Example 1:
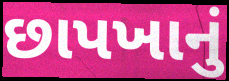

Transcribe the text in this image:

છાપખાનું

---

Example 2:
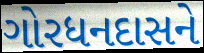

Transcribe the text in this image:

ગોરધનદાસને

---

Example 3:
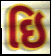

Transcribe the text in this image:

ઇિ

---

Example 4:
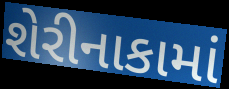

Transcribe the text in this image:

શેરીનાકામાં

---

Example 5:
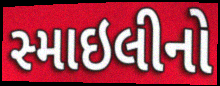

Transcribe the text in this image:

સ્માઇલીનો